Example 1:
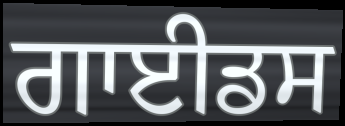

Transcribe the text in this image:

ਗਾਈਡਸ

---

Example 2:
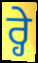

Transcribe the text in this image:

ਰ੍ਹੇ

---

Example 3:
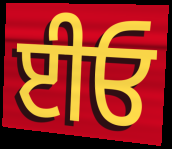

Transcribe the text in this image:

ਈਓ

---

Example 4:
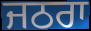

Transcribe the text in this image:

ਜਠਰਾ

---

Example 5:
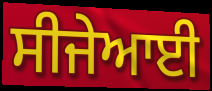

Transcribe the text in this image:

ਸੀਜੇਆਈ